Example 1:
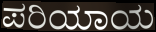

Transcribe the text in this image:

ಪರಿಯಾಯ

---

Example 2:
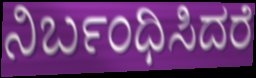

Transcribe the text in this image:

ನಿರ್ಬಂಧಿಸಿದರೆ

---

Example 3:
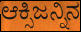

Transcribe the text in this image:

ಆಕ್ಸಿಜನ್ನಿನ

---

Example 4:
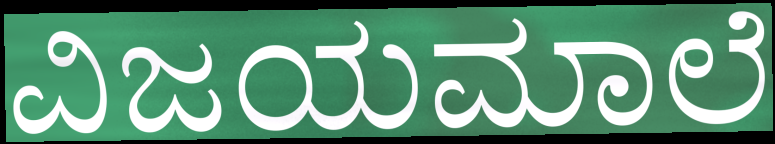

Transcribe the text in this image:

ವಿಜಯಮಾಲೆ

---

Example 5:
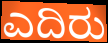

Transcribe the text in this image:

ಎದಿರು